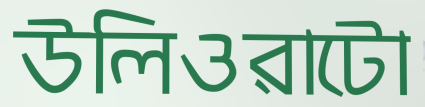
উলিওৱাটো